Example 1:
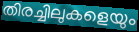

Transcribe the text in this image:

തിരച്ചിലുകളെയും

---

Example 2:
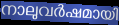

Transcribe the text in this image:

നാലുവർഷമായി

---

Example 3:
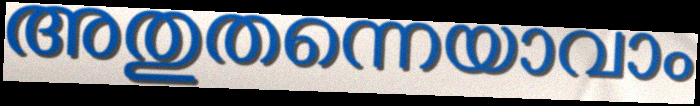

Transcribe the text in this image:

അതുതന്നെയാവാം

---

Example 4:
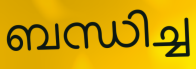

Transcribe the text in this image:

ബന്ധിച്ച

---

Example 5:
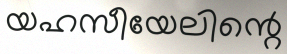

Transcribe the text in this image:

യഹസീയേലിന്റെ